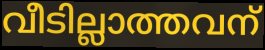
വീടില്ലാത്തവന്